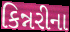
કિન્નરીના